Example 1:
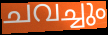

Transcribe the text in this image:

ചവച്ചും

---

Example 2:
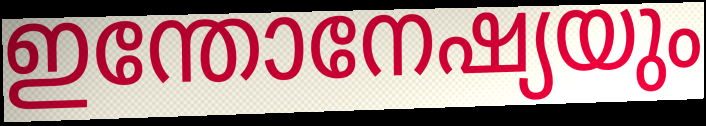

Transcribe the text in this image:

ഇന്തോനേഷ്യയും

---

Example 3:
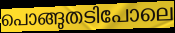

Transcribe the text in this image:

പൊങ്ങുതടിപോലെ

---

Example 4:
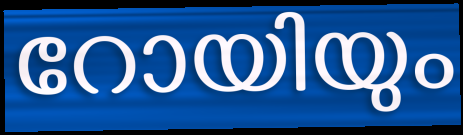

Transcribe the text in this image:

റോയിയും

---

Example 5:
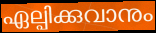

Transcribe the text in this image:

ഏല്പിക്കുവാനും